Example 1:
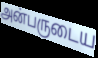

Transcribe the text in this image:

அன்பருடைய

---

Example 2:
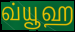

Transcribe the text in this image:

வ்யூஹ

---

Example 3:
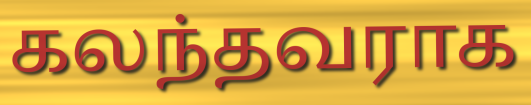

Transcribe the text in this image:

கலந்தவராக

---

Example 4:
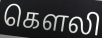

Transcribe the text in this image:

கௌலி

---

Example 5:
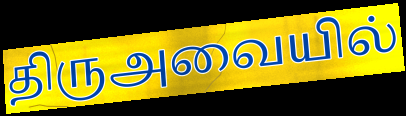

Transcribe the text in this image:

திருஅவையில்